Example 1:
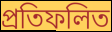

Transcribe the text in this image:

প্রতিফলিত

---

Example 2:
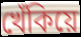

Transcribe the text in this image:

খেঁকিয়ে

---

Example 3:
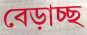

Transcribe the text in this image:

বেড়াচ্ছ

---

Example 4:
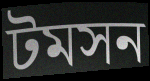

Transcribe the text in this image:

টমসন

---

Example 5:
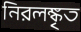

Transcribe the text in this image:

নিরলঙ্কৃত